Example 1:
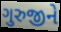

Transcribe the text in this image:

ગુરુજીને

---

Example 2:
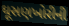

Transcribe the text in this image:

ઘૂસણખોરીની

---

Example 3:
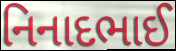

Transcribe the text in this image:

નિનાદભાઈ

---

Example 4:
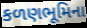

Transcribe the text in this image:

કળણભૂમિના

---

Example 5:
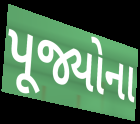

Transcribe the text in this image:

પૂજ્યોના